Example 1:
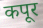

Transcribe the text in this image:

कपूर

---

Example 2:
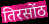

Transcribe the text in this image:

तिरसोंठ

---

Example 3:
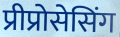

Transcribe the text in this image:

प्रीप्रोसेसिंग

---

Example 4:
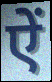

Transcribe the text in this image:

ऐं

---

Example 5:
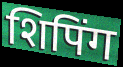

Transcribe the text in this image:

शिपिंग